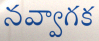
నవ్వాగక